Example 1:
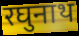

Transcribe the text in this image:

रघुनाथ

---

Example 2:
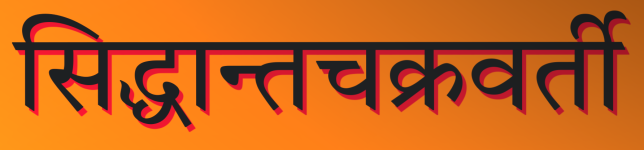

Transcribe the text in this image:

सिद्धान्तचक्रवर्ती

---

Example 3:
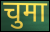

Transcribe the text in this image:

चुमा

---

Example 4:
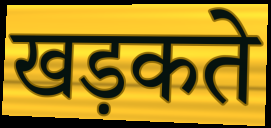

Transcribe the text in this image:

खड़कते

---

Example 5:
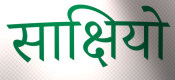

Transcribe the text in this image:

साक्षियो